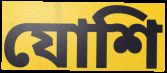
যোশি